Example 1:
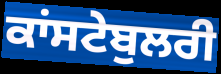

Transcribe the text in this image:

ਕਾਂਸਟੇਬੁਲਰੀ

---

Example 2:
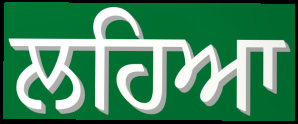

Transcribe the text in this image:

ਲਹਿਆ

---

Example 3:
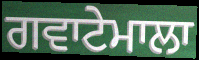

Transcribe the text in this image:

ਗਵਾਟੇਮਾਲਾ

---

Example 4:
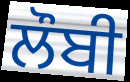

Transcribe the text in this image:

ਲੌਬੀ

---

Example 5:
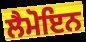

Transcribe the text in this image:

ਲੈਮੋਇਨ